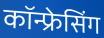
कॉन्फ्रेसिंग